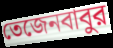
তেজেনবাবুর